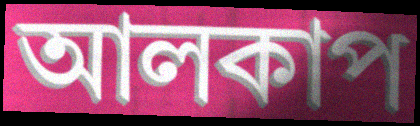
আলকাপ